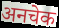
अनचेक